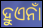
ହୁଏନାଁ